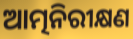
ଆତ୍ମନିରୀକ୍ଷଣ